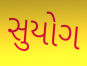
સુયોગ